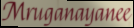
Mruganayanee